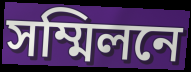
সম্মিলনে